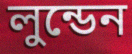
লুন্ডেন